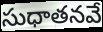
సుధాతనవే